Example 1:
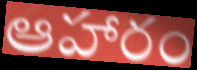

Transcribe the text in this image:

ఆహారం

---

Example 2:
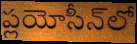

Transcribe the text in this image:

ప్లయోసీన్‌లో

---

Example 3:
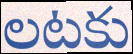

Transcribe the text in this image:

లటకు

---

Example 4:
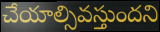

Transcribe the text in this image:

చేయాల్సివస్తుందని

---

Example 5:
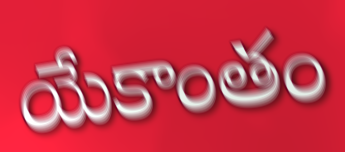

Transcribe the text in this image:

యేకాంతం